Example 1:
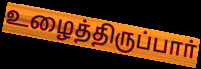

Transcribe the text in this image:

உழைத்திருப்பார்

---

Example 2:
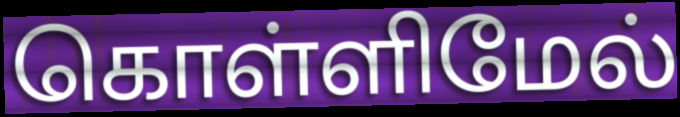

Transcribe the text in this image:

கொள்ளிமேல்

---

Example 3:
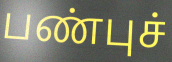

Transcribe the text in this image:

பண்புச்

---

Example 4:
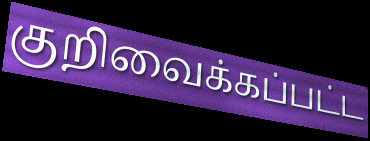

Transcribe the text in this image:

குறிவைக்கப்பட்ட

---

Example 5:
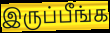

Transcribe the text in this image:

இருப்பீங்க